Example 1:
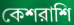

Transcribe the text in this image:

কেশরাশি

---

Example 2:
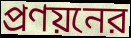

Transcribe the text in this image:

প্রণয়নের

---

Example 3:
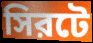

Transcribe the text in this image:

সিরটে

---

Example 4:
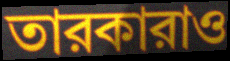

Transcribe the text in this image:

তারকারাও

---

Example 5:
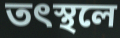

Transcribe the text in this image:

তৎস্থলে